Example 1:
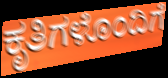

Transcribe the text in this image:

ಕೃತಿಗಳೊಂದಿಗೆ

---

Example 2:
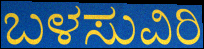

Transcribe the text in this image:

ಬಳಸುವಿರಿ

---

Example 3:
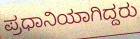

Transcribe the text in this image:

ಪ್ರಧಾನಿಯಾಗಿದ್ದರು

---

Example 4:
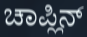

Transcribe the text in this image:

ಚಾಪ್ಲಿನ್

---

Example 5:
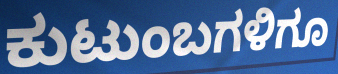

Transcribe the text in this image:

ಕುಟುಂಬಗಳಿಗೂ